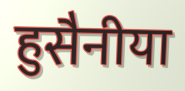
हुसैनीया